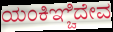
ಯಂಕಿಞ್ಚಿದೇವ